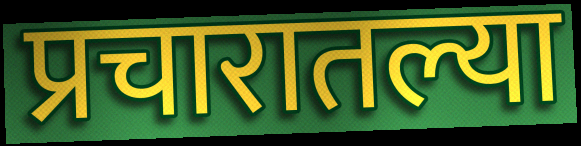
प्रचारातल्या